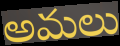
అమలు